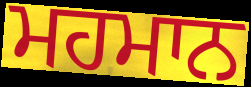
ਮਹਮਾਨ